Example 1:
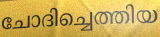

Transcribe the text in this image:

ചോദിച്ചെത്തിയ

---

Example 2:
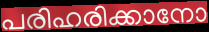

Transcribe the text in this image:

പരിഹരിക്കാനോ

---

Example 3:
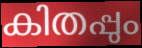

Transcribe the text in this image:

കിതപ്പും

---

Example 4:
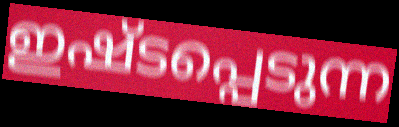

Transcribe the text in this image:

ഇഷ്ടപ്പെടുന്ന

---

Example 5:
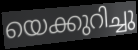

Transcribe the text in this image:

യെക്കുറിച്ചു